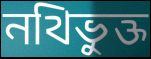
নথিভুক্ত